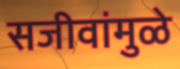
सजीवांमुळे